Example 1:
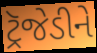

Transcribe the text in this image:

ટ્રૅજેડીને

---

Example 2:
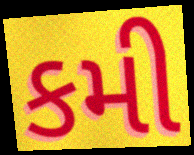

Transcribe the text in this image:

કમી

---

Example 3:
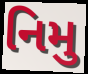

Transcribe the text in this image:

નિમુ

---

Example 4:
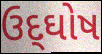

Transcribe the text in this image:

ઉદ્‌ઘોષ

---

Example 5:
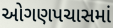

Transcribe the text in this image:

ઓગણપચાસમાં